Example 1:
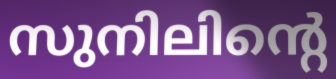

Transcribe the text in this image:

സുനിലിന്റെ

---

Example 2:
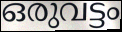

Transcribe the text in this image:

ഒരുവട്ടം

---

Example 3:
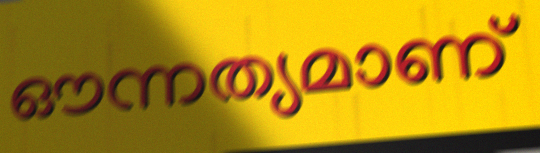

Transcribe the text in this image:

ഔന്നത്യമാണ്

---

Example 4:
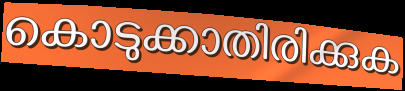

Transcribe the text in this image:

കൊടുക്കാതിരിക്കുക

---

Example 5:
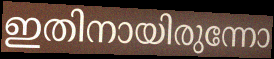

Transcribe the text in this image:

ഇതിനായിരുന്നോ